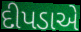
દીપડાએ